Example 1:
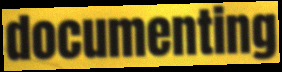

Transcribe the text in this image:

documenting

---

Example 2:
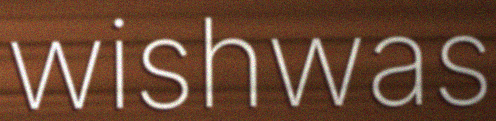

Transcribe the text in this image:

wishwas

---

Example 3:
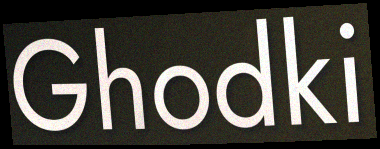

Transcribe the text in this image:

Ghodki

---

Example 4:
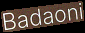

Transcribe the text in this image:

Badaoni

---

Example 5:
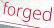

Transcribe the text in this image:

forged